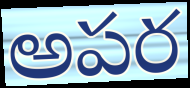
అపర